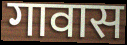
गावास